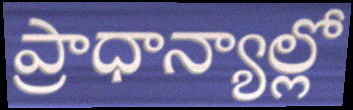
ప్రాధాన్యాల్లో